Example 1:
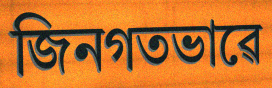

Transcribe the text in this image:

জিনগতভাৱে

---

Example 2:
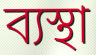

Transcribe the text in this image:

ব্যস্থা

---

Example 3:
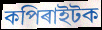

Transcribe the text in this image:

কপিৰাইটক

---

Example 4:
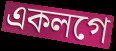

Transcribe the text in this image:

একলগে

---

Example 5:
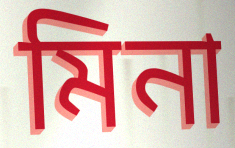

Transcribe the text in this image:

মিনা